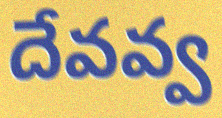
దేవవ్వ